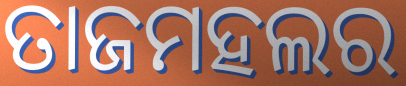
ତାଜମହଲର